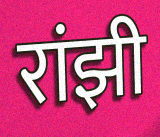
रांझी